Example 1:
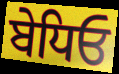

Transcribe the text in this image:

ਬੇਧਿਓ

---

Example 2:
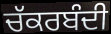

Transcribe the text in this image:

ਚੱਕਰਬੰਦੀ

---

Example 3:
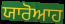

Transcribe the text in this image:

ਯਾਰੋਆਹ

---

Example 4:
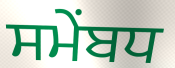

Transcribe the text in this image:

ਸਮੇਂਬਧ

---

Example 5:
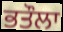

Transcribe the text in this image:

ਭਤੌਲਾ